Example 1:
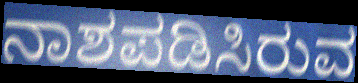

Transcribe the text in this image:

ನಾಶಪಡಿಸಿರುವ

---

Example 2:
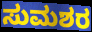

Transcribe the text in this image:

ಸುಮಶರ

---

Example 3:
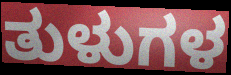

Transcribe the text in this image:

ತುಳುಗಳ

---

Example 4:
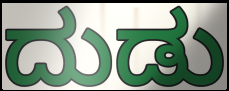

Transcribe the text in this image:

ದುಡು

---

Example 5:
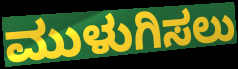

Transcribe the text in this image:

ಮುಳುಗಿಸಲು